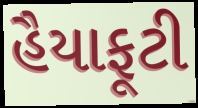
હૈયાફૂટી